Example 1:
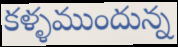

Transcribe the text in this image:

కళ్ళముందున్న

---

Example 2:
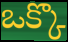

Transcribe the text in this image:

ఒక్కొ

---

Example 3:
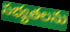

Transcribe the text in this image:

సభ్యతలను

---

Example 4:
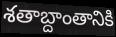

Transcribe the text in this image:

శతాబ్దాంతానికి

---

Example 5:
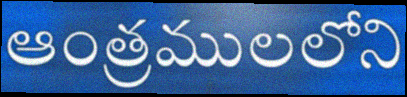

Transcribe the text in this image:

ఆంత్రములలోని